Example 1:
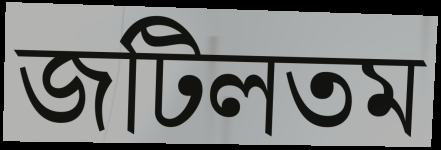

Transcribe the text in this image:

জটিলতম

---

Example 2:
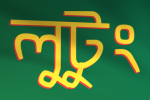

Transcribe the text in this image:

লুটুং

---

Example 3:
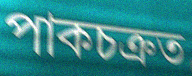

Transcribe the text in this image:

পাকচক্ৰত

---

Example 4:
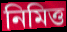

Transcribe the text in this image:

নিমিত্ত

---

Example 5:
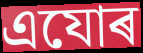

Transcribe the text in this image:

এযোৰ